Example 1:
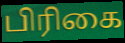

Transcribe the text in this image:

பிரிகை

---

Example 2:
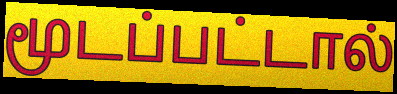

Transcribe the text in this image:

மூடப்பட்டால்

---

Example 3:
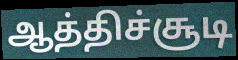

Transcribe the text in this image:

ஆத்திச்சூடி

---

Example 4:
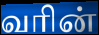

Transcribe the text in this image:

வரின்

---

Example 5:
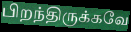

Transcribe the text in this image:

பிறந்திருக்கவே